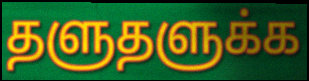
தளுதளுக்க